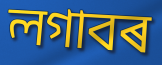
লগাবৰ